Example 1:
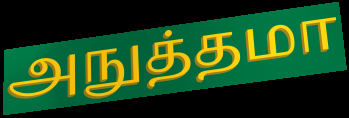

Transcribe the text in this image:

அநுத்தமா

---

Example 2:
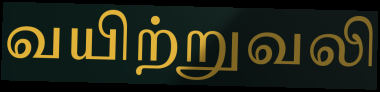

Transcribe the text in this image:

வயிற்றுவலி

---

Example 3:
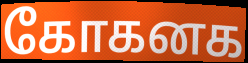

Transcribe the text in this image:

கோகனக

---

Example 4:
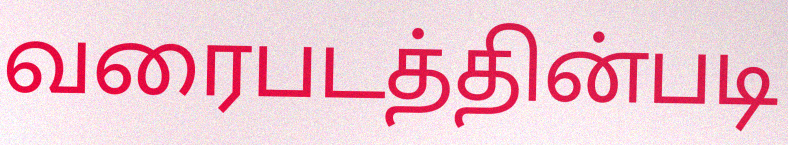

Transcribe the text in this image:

வரைபடத்தின்படி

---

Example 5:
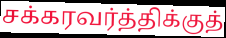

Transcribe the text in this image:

சக்கரவர்த்திக்குத்